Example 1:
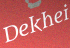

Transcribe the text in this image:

Dekhei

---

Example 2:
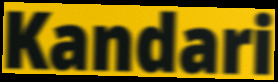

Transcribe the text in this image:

Kandari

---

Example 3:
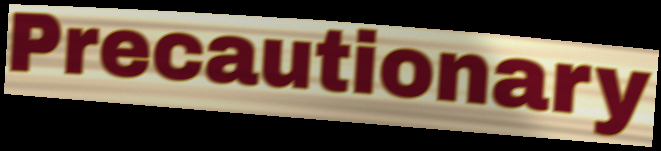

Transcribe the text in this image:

Precautionary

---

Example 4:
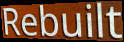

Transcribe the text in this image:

Rebuilt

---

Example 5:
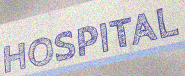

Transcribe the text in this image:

HOSPITAL